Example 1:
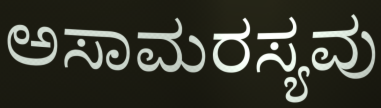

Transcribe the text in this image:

ಅಸಾಮರಸ್ಯವು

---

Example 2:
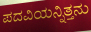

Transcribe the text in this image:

ಪದವಿಯನ್ನಿತ್ತನು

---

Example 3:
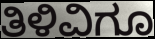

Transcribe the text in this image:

ತಿಳಿವಿಗೂ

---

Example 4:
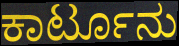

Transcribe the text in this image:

ಕಾರ್ಟೂನು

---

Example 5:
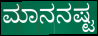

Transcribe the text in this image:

ಮಾನನಷ್ಟ